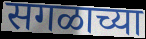
सगळाच्या